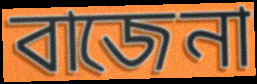
বাজেনা